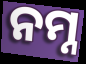
ନମ୍ନ